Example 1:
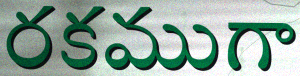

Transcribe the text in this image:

రకముగా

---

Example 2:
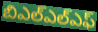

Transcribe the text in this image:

బిఎల్ఎల్ఎఫ్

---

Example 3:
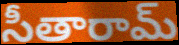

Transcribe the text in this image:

సీతారామ్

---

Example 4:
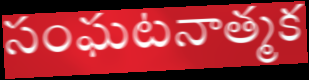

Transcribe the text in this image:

సంఘటనాత్మక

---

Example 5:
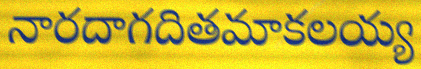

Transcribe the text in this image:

నారదాగదితమాకలయ్య